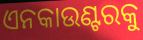
ଏନକାଉଣ୍ଟରକୁ